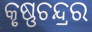
କୃଷ୍ଣଚନ୍ଦ୍ରର